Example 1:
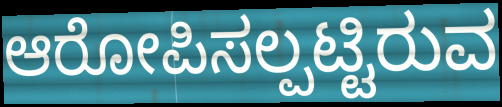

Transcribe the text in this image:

ಆರೋಪಿಸಲ್ಪಟ್ಟಿರುವ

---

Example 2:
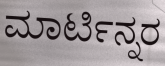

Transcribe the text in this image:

ಮಾರ್ಟಿನ್ನರ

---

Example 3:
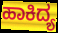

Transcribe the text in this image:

ಹಾಕಿದ್ಯ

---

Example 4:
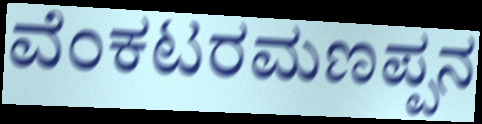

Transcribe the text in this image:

ವೆಂಕಟರಮಣಪ್ಪನ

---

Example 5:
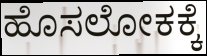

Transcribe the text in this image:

ಹೊಸಲೋಕಕ್ಕೆ